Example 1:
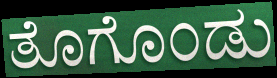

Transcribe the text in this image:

ತೊಗೊಂಡು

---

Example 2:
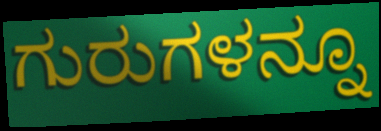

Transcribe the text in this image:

ಗುರುಗಳನ್ನೂ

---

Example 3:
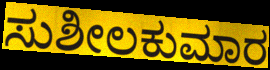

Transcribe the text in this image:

ಸುಶೀಲಕುಮಾರ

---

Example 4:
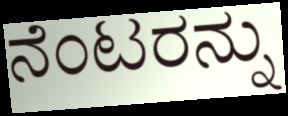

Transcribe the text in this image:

ನೆಂಟರನ್ನು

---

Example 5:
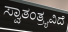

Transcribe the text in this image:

ಸ್ವಾತಂತ್ರ್ಯವಿದೆ